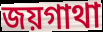
জয়গাথা